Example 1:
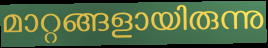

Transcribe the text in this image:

മാറ്റങ്ങളായിരുന്നു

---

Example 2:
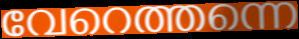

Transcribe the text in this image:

വേറെത്തന്നെ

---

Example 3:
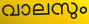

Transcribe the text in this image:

വാലസും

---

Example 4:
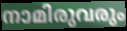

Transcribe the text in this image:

നാമിരുവരും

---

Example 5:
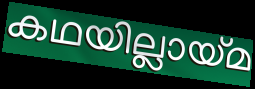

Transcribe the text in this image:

കഥയില്ലായ്മ